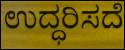
ಉದ್ಧರಿಸದೆ